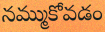
నమ్ముకోవడం